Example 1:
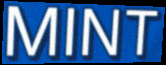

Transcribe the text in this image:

MINT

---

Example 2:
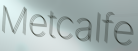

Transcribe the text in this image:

Metcalfe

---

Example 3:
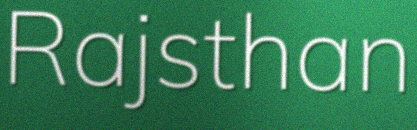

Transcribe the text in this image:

Rajsthan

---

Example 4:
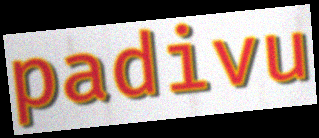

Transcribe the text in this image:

padivu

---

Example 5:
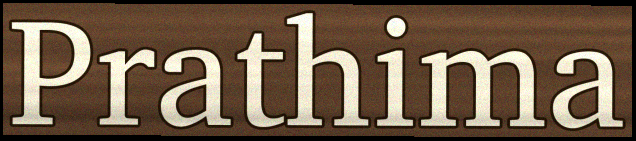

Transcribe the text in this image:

Prathima